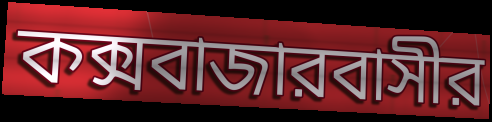
কক্সবাজারবাসীর